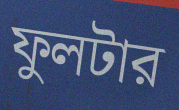
ফুলটার